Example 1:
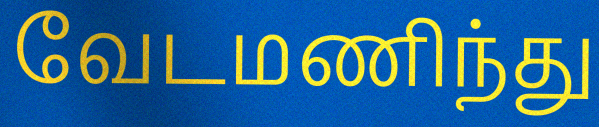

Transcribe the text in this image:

வேடமணிந்து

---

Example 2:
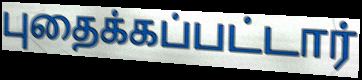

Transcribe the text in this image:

புதைக்கப்பட்டார்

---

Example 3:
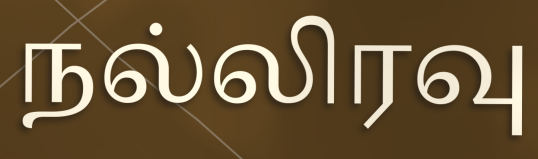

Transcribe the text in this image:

நல்லிரவு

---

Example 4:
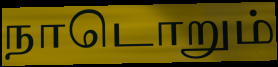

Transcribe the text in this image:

நாடொறும்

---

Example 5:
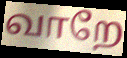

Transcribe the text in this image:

வாறே